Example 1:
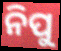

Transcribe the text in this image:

ନିପୁ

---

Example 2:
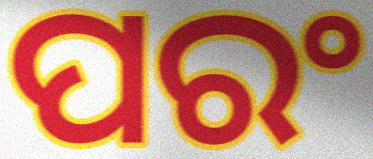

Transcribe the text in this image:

ପରଂ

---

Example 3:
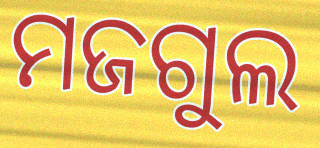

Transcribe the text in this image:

ମଜଗୁଲ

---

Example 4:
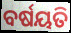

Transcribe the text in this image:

ବର୍ଷୟତି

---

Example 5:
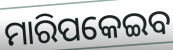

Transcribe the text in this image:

ମାରିପକେଇବ